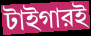
টাইগারই